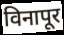
विनापूर